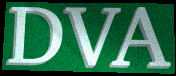
DVA